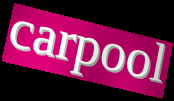
carpool